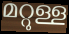
മറ്റുള്ള